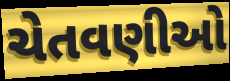
ચેતવણીઓ